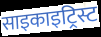
साइकाइट्रिस्ट